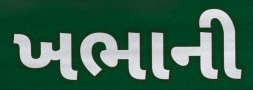
ખભાની